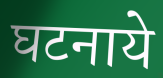
घटनाये